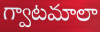
గ్వాటమాలా